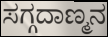
ಸಗ್ಗದಾಣ್ಮನ